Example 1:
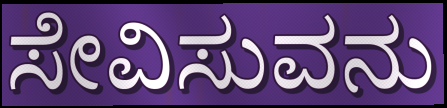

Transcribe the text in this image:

ಸೇವಿಸುವನು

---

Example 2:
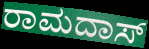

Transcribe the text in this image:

ರಾಮದಾಸ್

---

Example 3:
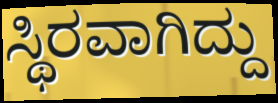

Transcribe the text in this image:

ಸ್ಥಿರವಾಗಿದ್ದು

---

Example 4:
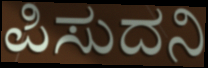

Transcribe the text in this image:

ಪಿಸುದನಿ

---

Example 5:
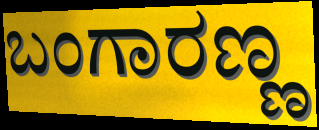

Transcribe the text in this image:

ಬಂಗಾರಣ್ಣ